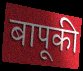
बापूकी